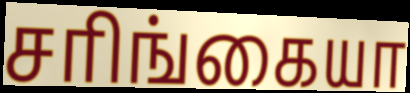
சரிங்கையா